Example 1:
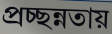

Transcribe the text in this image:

প্রচ্ছন্নতায়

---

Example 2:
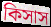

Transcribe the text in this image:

কিসাস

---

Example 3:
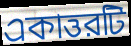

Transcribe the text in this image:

একাত্তরটি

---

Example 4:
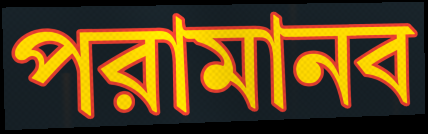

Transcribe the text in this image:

পরামানব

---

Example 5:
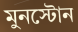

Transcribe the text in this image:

মুনস্টোন